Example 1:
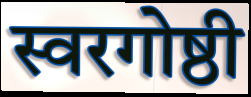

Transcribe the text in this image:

स्वरगोष्ठी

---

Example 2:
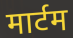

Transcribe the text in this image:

मार्टम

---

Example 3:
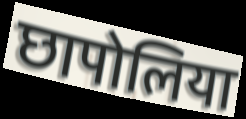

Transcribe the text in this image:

छापोलिया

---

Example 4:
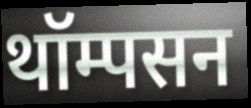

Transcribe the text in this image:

थॉम्पसन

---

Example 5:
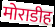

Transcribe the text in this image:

मोराडीह